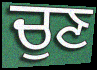
ਚੁਣ